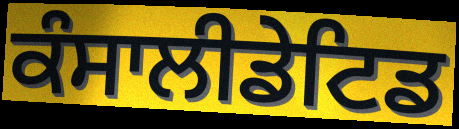
ਕੰਸਾਲੀਡੇਟਿਡ